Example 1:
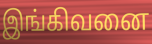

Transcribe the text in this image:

இங்கிவனை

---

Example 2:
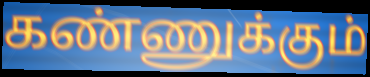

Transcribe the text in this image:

கண்ணுக்கும்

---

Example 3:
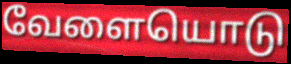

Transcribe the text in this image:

வேளையொடு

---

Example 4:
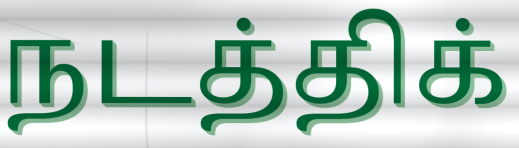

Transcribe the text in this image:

நடத்திக்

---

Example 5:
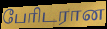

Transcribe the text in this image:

பேரிடரான